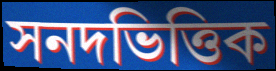
সনদভিত্তিক